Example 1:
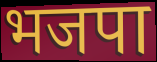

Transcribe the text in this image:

भजपा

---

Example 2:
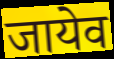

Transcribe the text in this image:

जायेव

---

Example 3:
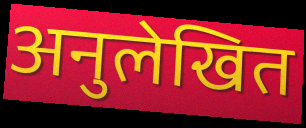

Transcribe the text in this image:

अनुलेखित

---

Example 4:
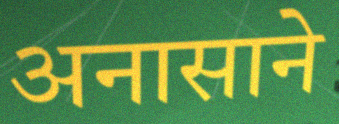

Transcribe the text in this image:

अनासाने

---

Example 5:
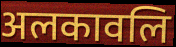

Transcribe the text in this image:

अलकावलि